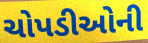
ચોપડીઓની